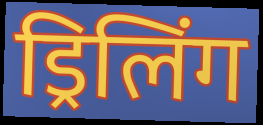
ड्रिलिंग